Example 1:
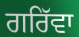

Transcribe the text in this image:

ਗਰਿੱਵਾ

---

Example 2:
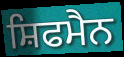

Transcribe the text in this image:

ਸ਼ਿਫਮੈਨ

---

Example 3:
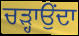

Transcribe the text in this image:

ਚੜ੍ਹਾਉਂਦਾ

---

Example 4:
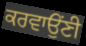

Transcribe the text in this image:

ਕਰਵਾਉਂਣੀ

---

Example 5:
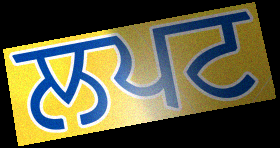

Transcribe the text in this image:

ਲਪਟ